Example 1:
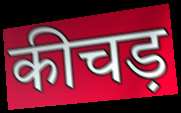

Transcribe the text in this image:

कीचड़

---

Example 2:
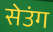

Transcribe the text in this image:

सेउंग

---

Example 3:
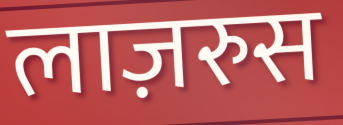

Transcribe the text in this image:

लाज़रुस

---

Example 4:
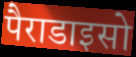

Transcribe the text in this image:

पैराडाइसो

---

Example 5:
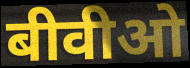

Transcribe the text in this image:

बीवीओ